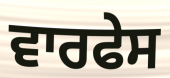
ਵਾਰਫੇਸ